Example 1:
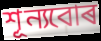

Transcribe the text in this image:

শূন্যবোৰ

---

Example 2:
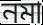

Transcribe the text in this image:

নমা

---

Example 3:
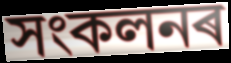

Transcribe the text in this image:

সংকলনৰ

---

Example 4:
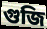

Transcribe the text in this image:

গুজি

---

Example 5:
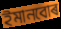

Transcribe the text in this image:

ইমানবোৰ